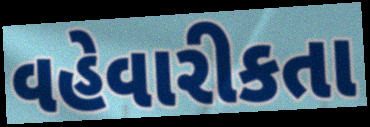
વહેવારીકતા